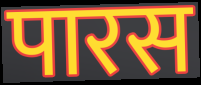
पारस